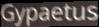
Gypaetus